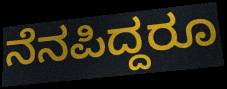
ನೆನಪಿದ್ದರೂ